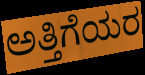
ಅತ್ತಿಗೆಯರ